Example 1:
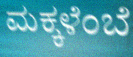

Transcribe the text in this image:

ಮಕ್ಕಳೆಂಬೆ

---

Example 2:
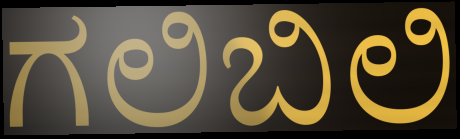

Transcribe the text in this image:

ಗಲಿಬಿಲಿ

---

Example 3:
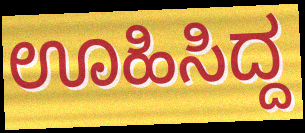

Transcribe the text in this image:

ಊಹಿಸಿದ್ದ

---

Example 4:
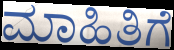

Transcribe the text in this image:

ಮಾಹಿತಿಗೆ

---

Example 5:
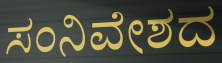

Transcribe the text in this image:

ಸಂನಿವೇಶದ